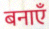
बनाएँ